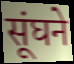
सूंघने